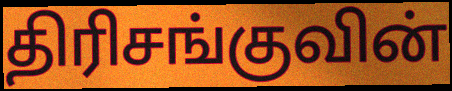
திரிசங்குவின்